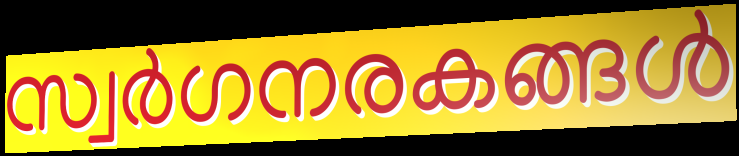
സ്വർഗനരകങ്ങൾ